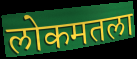
लोकमतला